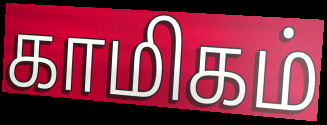
காமிகம்